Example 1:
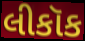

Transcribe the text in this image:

લીકૉક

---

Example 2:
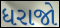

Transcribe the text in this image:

ધરાજો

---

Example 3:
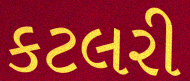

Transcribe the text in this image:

કટલરી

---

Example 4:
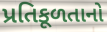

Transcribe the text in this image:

પ્રતિકૂળતાનો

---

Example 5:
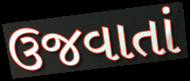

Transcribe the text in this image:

ઉજવાતાં